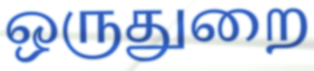
ஒருதுறை